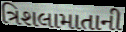
ત્રિશલામાતાની